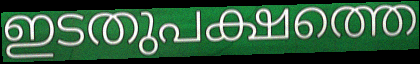
ഇടതുപക്ഷത്തെ